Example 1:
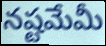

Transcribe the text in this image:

నష్టమేమీ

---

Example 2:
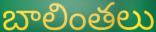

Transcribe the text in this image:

బాలింతలు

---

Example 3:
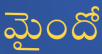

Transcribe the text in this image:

మైందో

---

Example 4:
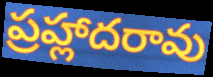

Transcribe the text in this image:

ప్రహ్లాదరావు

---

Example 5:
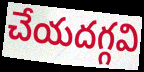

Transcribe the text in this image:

చేయదగ్గవి